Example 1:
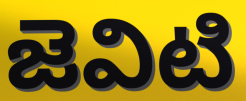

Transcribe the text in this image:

జెవిటి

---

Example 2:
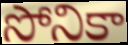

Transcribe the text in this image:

సోనికా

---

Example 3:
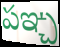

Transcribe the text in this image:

పఞ్చ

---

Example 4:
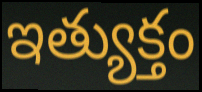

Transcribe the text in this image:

ఇత్యుక్తం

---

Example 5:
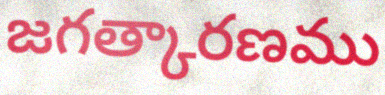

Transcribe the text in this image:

జగత్కారణము